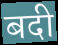
बदी